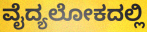
ವೈದ್ಯಲೋಕದಲ್ಲಿ